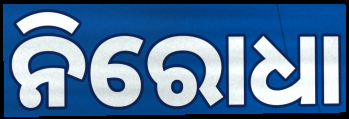
ନିରୋଧା